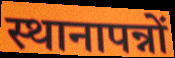
स्थानापन्नों